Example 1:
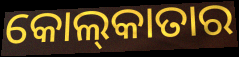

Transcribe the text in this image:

କୋଲ୍‍କାତାର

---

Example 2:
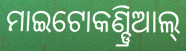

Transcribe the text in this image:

ମାଇଟୋକଣ୍ଡ୍ରିଆଲ୍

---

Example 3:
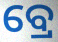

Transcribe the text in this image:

ବ୍ରେ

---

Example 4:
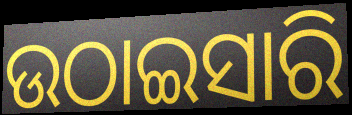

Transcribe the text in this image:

ଉଠାଇସାରି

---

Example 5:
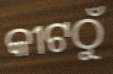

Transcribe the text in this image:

କୀଟଠୁଁ